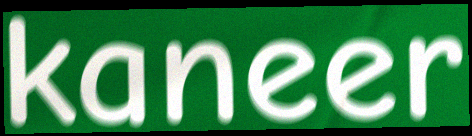
kaneer